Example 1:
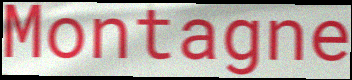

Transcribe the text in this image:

Montagne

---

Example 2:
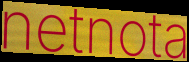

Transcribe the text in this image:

netnota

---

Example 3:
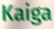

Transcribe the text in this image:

Kaiga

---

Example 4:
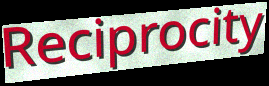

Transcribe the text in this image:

Reciprocity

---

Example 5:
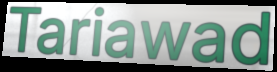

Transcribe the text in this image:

Tariawad